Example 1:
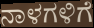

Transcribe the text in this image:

ನಾಳಗಳಿಗೆ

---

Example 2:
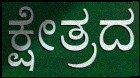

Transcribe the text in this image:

ಕ್ಷೇತ್ರದ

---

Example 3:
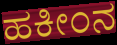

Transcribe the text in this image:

ಹಕೀಂನ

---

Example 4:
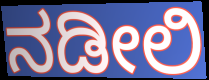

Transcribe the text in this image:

ನಡೀಲಿ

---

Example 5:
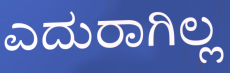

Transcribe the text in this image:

ಎದುರಾಗಿಲ್ಲ